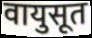
वायुसूत